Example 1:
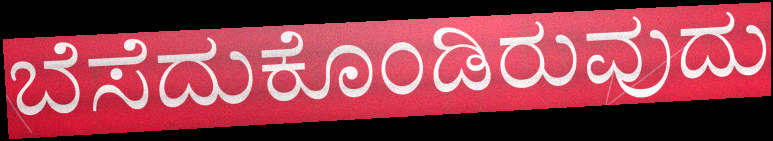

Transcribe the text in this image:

ಬೆಸೆದುಕೊಂಡಿರುವುದು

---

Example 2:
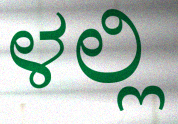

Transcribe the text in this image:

ಳಲ್ಲಿ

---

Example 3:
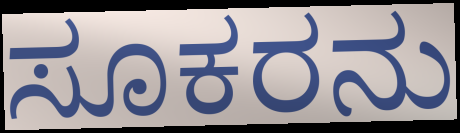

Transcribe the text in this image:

ಸೂಕರನು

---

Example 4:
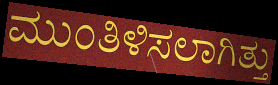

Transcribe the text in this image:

ಮುಂತಿಳಿಸಲಾಗಿತ್ತು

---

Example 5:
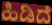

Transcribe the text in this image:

ಹಿಡಿದೆ